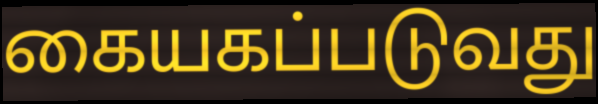
கையகப்படுவது